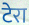
टेरा